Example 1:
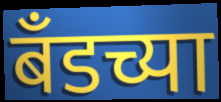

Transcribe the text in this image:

बँडच्या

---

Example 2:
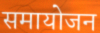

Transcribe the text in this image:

समायोजन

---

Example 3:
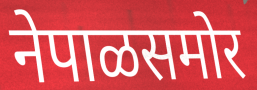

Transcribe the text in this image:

नेपाळसमोर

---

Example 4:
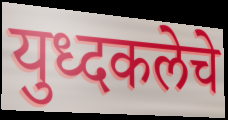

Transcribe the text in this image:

युध्दकलेचे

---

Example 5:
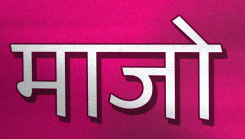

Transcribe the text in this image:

माजो